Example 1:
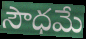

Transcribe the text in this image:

సౌధమే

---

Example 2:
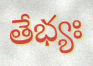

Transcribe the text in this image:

తేభ్యః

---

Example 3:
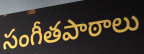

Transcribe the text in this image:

సంగీతపాఠాలు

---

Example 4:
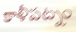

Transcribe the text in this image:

కాళీపట్నం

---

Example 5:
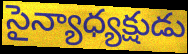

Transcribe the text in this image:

సైన్యాధ్యక్షుడు